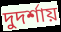
দুদর্শায়